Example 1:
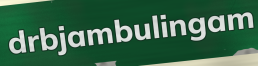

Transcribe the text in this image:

drbjambulingam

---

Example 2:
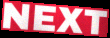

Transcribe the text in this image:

NEXT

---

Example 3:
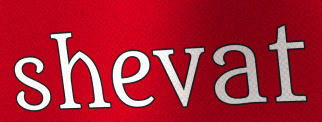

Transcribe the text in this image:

shevat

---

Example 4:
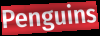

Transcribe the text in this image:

Penguins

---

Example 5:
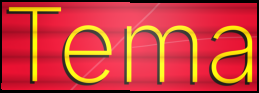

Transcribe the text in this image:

Tema